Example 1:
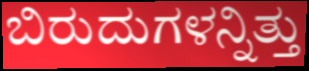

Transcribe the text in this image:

ಬಿರುದುಗಳನ್ನಿತ್ತು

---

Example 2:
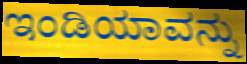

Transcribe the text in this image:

ಇಂಡಿಯಾವನ್ನು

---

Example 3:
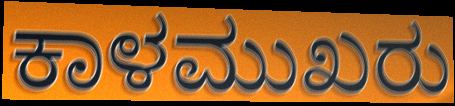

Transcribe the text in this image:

ಕಾಳಮುಖರು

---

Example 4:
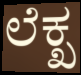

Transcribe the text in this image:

ಲೆಕ್ಖ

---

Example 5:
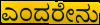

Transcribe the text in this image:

ಎಂದರೇನು